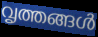
വൃത്തങ്ങൾ